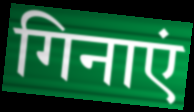
गिनाएं